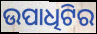
ଉପାଧିଟିର